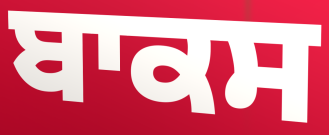
ਬਾਕਸ